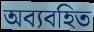
অব্যবহিত